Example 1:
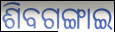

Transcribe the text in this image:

ଶିବଗଙ୍ଗାଇ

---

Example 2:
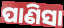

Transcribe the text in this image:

ପାଣିସା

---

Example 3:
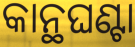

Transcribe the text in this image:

କାନ୍ଥଘଣ୍ଟା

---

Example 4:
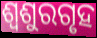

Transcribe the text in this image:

ଶ୍ୱଶୁରଗୃହ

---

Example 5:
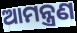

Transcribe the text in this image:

ଆମନ୍ତ୍ରଣ